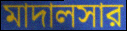
মাদালসার